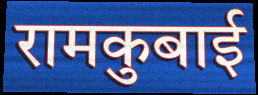
रामकुबाई